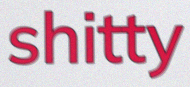
shitty